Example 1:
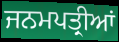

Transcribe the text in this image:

ਜਨਮਪਤ੍ਰੀਆਂ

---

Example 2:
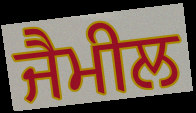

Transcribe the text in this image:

ਜੈਮੀਲ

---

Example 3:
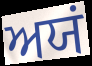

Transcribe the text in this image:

ਅਯਂ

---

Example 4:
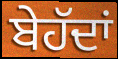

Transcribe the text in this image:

ਬੇਹੱਦਾਂ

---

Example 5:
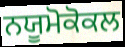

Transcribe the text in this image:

ਨਯੂਮੋਕੋਕਲ